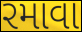
રમાવા